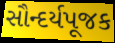
સૌન્દર્યપૂજક